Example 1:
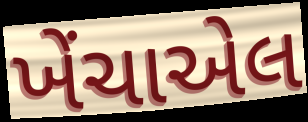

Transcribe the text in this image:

ખેંચાએલ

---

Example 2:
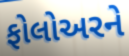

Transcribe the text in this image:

ફોલોઅરને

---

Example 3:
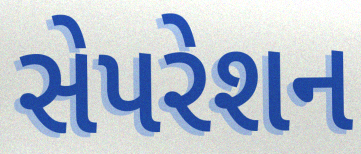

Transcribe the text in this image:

સેપરેશન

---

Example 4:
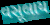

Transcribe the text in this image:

વસૂલાય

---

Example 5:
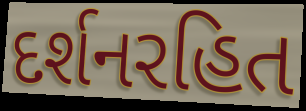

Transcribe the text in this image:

દર્શનરહિત